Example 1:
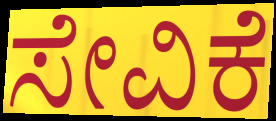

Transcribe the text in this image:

ಸೇವಿಕೆ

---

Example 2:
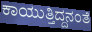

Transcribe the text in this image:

ಕಾಯುತ್ತಿದ್ದನಂತೆ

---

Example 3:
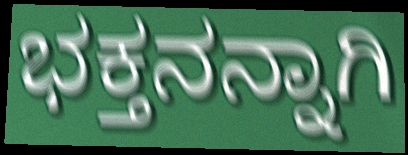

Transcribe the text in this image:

ಭಕ್ತನನ್ನಾಗಿ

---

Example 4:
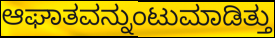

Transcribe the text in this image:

ಆಘಾತವನ್ನುಂಟುಮಾಡಿತ್ತು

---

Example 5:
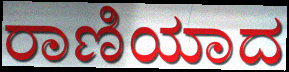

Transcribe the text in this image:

ರಾಣಿಯಾದ